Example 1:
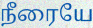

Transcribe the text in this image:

நீரையே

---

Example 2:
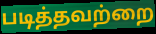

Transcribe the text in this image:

படித்தவற்றை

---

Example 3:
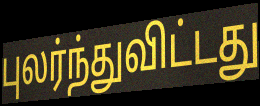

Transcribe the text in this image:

புலர்ந்துவிட்டது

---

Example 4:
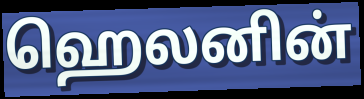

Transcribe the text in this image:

ஹெலனின்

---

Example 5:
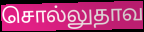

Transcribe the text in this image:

சொல்லுதாவ